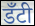
डँटी